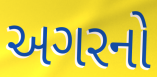
અગરનો